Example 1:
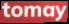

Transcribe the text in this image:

tomay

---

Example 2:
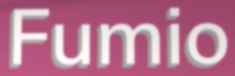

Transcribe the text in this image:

Fumio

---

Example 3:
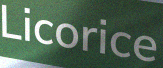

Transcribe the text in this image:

Licorice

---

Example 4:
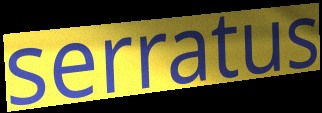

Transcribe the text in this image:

serratus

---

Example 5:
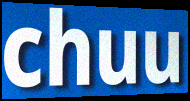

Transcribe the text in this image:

chuu